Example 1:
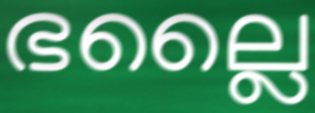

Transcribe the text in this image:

ഭല്ലൈ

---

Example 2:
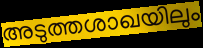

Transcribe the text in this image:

അടുത്തശാഖയിലും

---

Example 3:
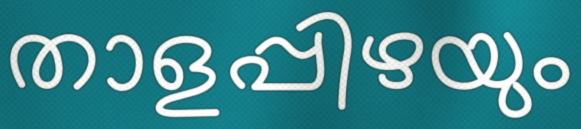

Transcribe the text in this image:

താളപ്പിഴയും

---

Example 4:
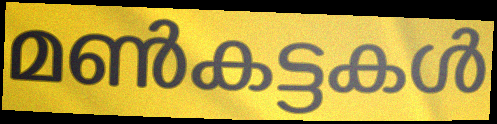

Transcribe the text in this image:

മൺകട്ടകൾ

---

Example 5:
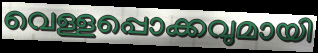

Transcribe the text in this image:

വെള്ളപ്പൊക്കവുമായി